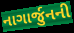
નાગાર્જુનની